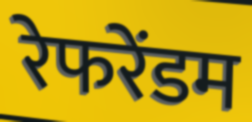
रेफरेंडम